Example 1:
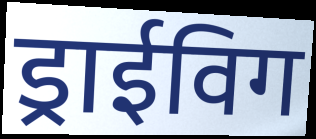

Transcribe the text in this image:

ड्राईविग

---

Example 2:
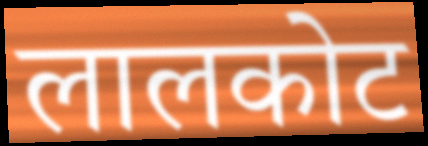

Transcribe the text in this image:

लालकोट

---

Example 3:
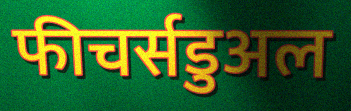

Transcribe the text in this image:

फीचर्सडुअल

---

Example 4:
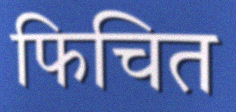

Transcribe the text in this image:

फिचित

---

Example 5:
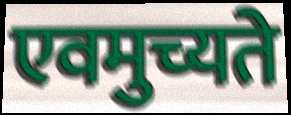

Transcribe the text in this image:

एवमुच्यते